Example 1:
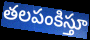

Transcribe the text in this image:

తలపంకిస్తూ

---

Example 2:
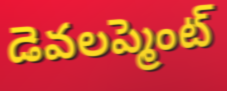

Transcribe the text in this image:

డెవలప్మెంట్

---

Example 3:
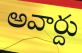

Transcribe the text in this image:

అవార్దు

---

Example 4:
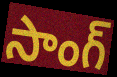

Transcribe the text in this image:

సాంగ్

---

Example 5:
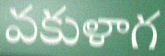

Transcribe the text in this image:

వకుళాగ